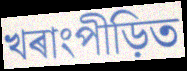
খৰাংপীড়িত